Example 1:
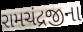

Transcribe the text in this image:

રામચંદ્રજીના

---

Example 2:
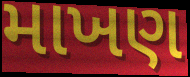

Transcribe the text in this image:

માખણ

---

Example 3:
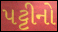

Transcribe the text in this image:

પટ્ટીનો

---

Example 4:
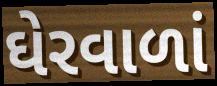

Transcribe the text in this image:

ઘેરવાળાં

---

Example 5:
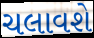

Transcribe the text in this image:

ચલાવશે